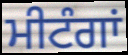
ਮੀਟੰਗਾਂ